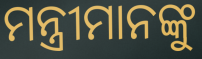
ମନ୍ତ୍ରୀମାନଙ୍କୁ